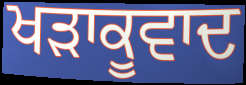
ਖੜਾਕੂਵਾਦ